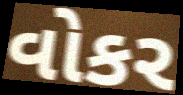
વોકર